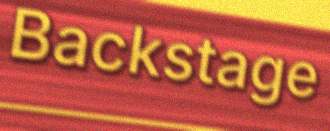
Backstage